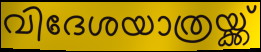
വിദേശയാത്രയ്ക്ക്